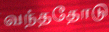
வந்ததோடு